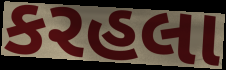
કરહલા